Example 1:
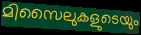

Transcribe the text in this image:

മിസൈലുകളുടെയും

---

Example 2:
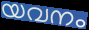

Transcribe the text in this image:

യവനം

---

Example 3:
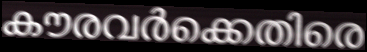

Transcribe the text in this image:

കൗരവർക്കെതിരെ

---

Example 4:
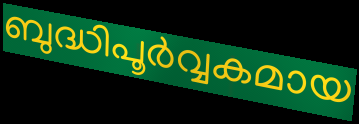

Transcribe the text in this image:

ബുദ്ധിപൂർവ്വകമായ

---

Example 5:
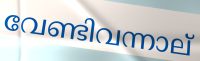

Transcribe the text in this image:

വേണ്ടിവന്നാല്